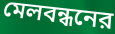
মেলবন্ধনের